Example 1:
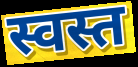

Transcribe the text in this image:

स्वस्त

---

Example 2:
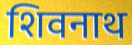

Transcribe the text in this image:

शिवनाथ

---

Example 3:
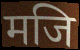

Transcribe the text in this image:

मजि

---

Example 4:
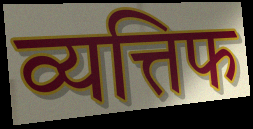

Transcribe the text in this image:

व्यत्तिफ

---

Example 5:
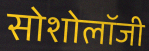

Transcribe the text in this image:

सोशोलॉजी